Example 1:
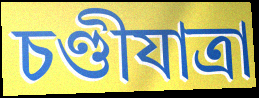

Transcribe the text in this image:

চণ্ডীযাত্রা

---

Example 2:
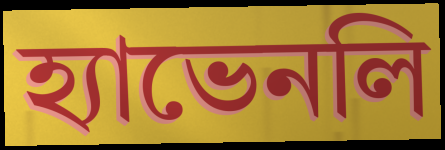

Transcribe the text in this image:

হ্যাভেনলি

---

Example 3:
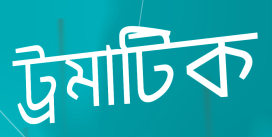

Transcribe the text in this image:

ট্রমাটিক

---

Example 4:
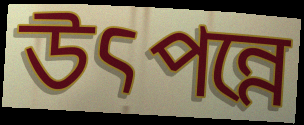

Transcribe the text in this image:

উৎপন্নে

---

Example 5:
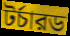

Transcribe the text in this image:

টর্চারড